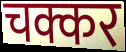
चक्कर